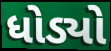
ધોડ્યો